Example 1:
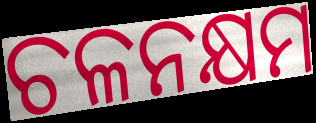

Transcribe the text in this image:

ଚଳନକ୍ଷମ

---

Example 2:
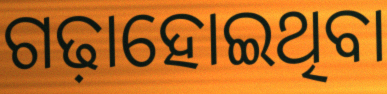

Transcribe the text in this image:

ଗଢ଼ାହୋଇଥିବା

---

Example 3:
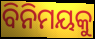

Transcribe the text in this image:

ବିନିମୟକୁ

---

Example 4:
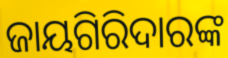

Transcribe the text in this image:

ଜାୟଗିରିଦାରଙ୍କ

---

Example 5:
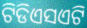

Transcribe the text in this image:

ଟିଡିଏସଏଟି